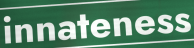
innateness